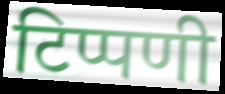
टिप्‍पणी